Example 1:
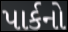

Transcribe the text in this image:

પાર્કનો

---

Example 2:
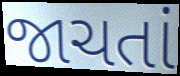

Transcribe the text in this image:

જાચતાં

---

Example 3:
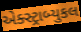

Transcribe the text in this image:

એક્સ્ટ્રાબ્યુકલ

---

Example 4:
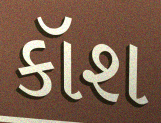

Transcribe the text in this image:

કૉશ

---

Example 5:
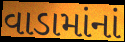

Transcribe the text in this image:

વાડામાંનાં